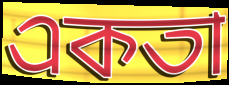
একতা